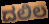
ದಲಿಲ